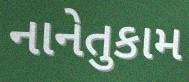
નાનેતુકામ